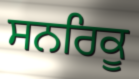
ਸਨਰਿਕੂ